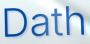
Dath